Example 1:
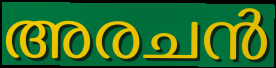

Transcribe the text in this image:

അരചൻ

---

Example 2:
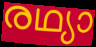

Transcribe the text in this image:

രഥ്യാ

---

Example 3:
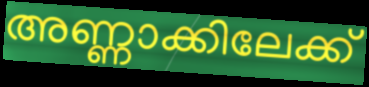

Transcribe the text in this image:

അണ്ണാക്കിലേക്ക്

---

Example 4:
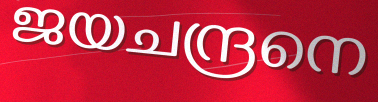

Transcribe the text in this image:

ജയചന്ദ്രനെ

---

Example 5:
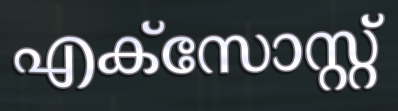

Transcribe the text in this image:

എക്സോസ്റ്റ്